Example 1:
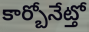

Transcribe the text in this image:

కార్బోనేట్తో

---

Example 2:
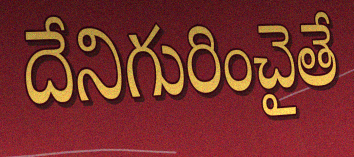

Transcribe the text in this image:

దేనిగురించైతే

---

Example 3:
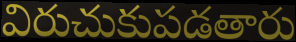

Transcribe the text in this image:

విరుచుకుపడతారు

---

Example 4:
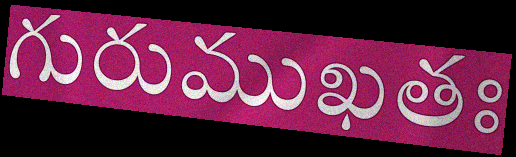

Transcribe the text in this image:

గురుముఖతః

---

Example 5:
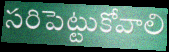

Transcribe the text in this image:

సరిపెట్టుకోవాలి